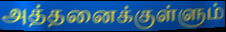
அத்தனைக்குள்ளும்